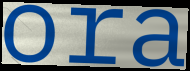
ora